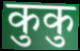
कुकु